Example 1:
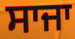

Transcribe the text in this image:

ਸਾਜਾ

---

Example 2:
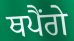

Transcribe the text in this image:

ਥਪੈਂਗੇ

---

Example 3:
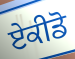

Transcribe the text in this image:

ਏਕੀਡੋ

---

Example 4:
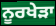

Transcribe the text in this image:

ਨੂਰਖੇੜਾ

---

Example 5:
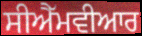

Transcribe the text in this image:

ਸੀਐੱਮਵੀਆਰ